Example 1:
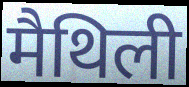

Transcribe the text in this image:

मैथिली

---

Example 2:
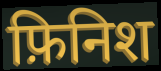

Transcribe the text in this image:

फ़िनिश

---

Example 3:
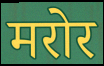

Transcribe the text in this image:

मरोर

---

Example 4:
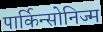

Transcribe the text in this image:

पार्किन्सोनिज्म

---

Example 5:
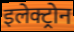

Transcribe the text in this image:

इलेक्ट्रोन